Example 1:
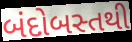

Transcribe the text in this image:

બંદોબસ્તથી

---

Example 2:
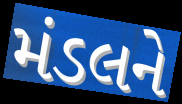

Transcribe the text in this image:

મંડલને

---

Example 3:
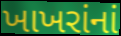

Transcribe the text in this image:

ખાખરાંનાં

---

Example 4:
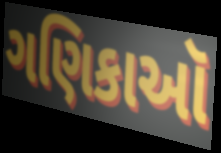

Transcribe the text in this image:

ગણિકાઑ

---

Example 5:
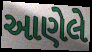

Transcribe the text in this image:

આણેલે